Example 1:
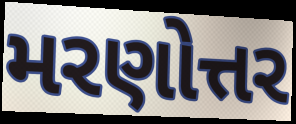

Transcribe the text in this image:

મરણોત્તર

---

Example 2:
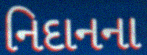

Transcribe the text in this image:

નિદાનના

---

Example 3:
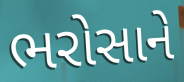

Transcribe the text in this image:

ભરોસાને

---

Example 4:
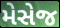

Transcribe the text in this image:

મેસેજ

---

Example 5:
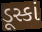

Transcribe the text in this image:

ડૂસ્કાં